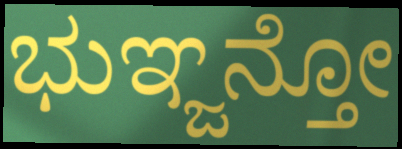
ಭುಞ್ಜನ್ತೋ